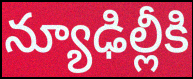
న్యూఢిల్లీకి